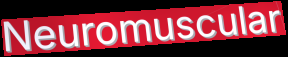
Neuromuscular